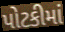
પોટકીમાં